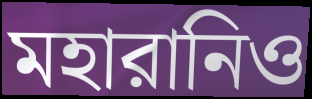
মহারানিও